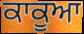
ਕਾਕੂਆ